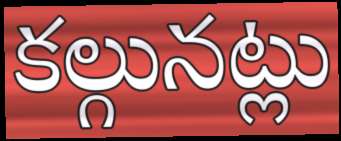
కల్గునట్లు